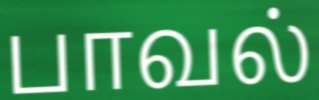
பாவல்